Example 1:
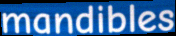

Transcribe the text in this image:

mandibles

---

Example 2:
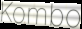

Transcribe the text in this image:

Kombo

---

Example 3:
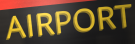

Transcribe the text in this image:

AIRPORT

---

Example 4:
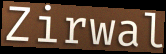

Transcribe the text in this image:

Zirwal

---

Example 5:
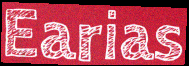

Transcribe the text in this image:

Earias